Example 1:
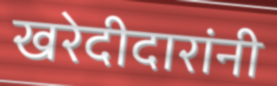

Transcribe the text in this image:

खरेदीदारांनी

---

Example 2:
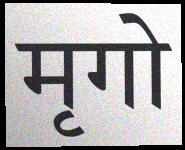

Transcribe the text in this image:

मृगो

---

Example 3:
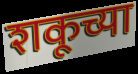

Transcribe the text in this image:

शकूच्या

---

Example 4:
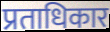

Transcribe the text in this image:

प्रताधिकार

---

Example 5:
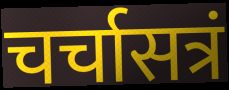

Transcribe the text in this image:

चर्चासत्रं